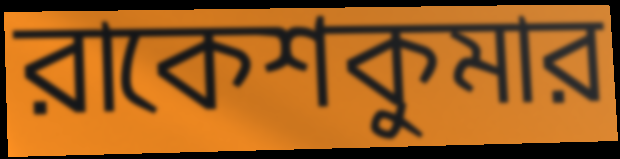
রাকেশকুমার